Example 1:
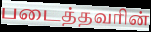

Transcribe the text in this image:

படைத்தவரின்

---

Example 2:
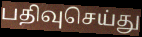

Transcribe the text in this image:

பதிவுசெய்து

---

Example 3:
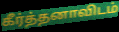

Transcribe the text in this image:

கீர்த்தனாவிடம்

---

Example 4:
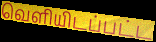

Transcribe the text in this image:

வெளியிடப்பட்ட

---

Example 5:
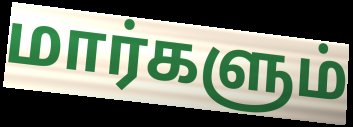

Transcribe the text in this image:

மார்களும்